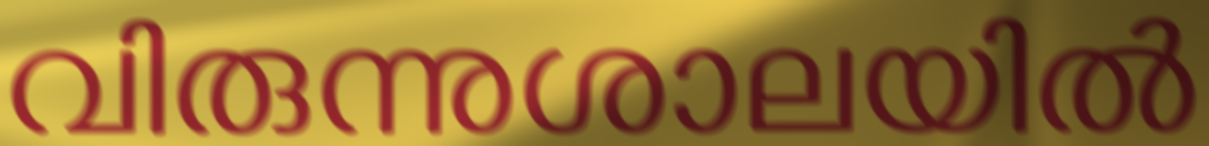
വിരുന്നുശാലയിൽ